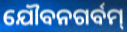
ଯୌବନଗର୍ବମ୍